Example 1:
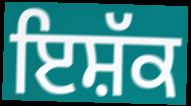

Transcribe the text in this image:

ਇਸ਼ੱਕ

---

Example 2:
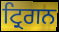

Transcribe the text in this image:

ਟ੍ਰਿਗਨ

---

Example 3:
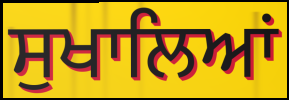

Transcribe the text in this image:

ਸੁਖਾਲਿਆਂ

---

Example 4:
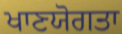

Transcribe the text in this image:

ਖਾਣਯੋਗਤਾ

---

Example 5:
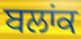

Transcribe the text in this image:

ਬਲਾਂਕ